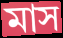
মাস